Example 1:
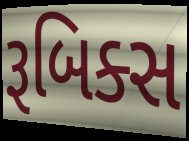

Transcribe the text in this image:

રૂબિક્સ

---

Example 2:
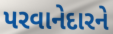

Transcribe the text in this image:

પરવાનેદારને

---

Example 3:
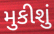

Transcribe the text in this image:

મુકીશું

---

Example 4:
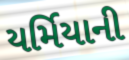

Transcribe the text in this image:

યર્મિયાની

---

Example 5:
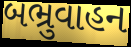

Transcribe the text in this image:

બભ્રુવાહન